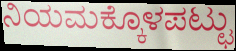
ನಿಯಮಕ್ಕೊಳಪಟ್ಟು